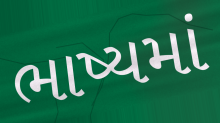
ભાષ્યમાં